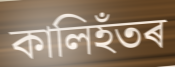
কালিহঁতৰ